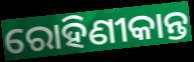
ରୋହିଣୀକାନ୍ତ